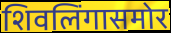
शिवलिंगासमोर